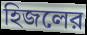
হিজলের